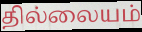
தில்லையம்